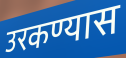
उरकण्यास